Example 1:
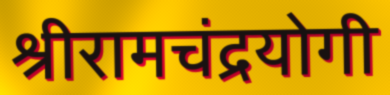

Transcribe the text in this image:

श्रीरामचंद्रयोगी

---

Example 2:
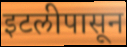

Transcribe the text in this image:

इटलीपासून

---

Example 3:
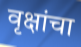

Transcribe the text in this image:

वृक्षांचा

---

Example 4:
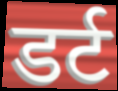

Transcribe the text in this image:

डर्ट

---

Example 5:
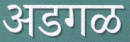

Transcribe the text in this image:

अडगळ